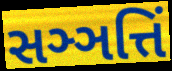
સઞ્ઞત્તિં